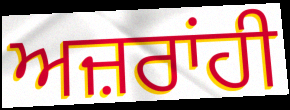
ਅਜ਼ਰਾਂਹੀ